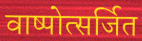
वाष्पोत्सर्जित